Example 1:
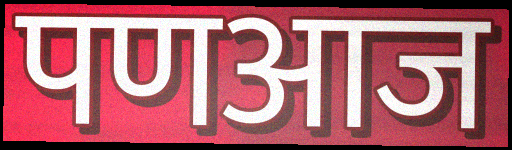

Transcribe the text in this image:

पणआज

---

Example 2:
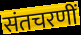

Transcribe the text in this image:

संतचरणीं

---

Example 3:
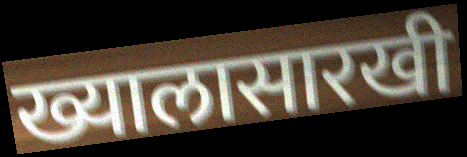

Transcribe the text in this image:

ख्यालासारखी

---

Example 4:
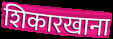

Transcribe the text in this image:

शिकारखाना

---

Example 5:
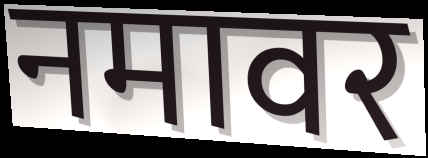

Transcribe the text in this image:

नमावर